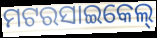
ମଟରସାଇକେଲ୍